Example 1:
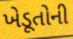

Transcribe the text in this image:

ખેડૂતોની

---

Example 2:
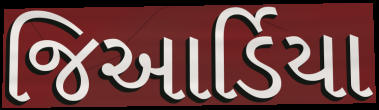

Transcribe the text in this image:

જિઆર્ડિયા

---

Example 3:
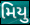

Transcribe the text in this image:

મિયુ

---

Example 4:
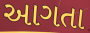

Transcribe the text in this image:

આગતા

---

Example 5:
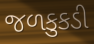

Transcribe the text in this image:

જળકુકડી